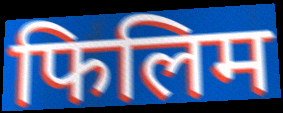
फिलिम